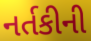
નર્તકીની